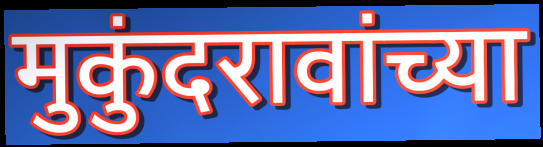
मुकुंदरावांच्या